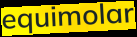
equimolar